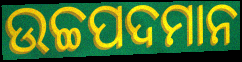
ଉଚ୍ଚପଦମାନ